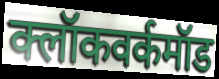
क्लॉकवर्कमॉड